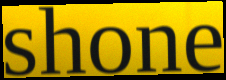
shone